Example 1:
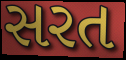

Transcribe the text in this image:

સરત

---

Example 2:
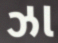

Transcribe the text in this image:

ઝા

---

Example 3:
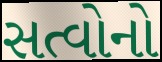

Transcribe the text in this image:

સત્વોનો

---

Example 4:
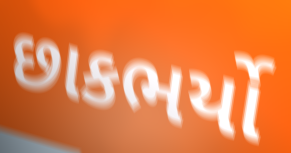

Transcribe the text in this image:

છાકભર્યો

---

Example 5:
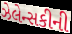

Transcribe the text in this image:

ઝેલેન્સકીની